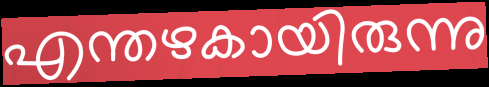
എന്തഴകായിരുന്നു